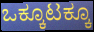
ಒಕ್ಕೂಟಕ್ಕೂ